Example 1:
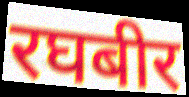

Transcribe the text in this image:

रघबीर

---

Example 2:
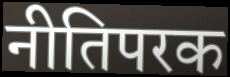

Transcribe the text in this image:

नीतिपरक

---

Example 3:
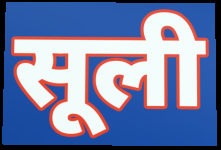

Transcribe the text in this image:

सूली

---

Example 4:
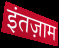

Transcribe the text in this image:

इंतज़ाम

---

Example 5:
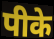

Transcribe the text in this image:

पीके